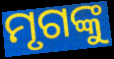
ମୃଗଙ୍କୁ